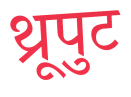
थ्रूपुट